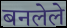
बनलेले